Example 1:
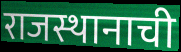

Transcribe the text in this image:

राजस्थानाची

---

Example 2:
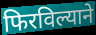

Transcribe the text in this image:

फिरविल्याने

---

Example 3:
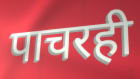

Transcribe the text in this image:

पाचरही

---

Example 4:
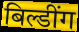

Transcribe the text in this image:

बिल्डींग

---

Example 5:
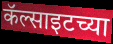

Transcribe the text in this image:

कॅल्साइटच्या